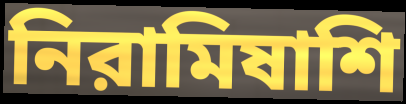
নিরামিষাশি